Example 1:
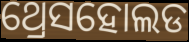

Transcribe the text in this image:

ଥ୍ରେସହୋଲଡ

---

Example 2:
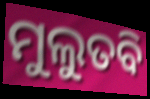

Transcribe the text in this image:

ମୁଲୁତବି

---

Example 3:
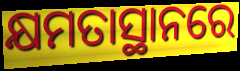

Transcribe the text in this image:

କ୍ଷମତାସ୍ଥାନରେ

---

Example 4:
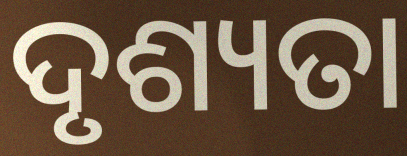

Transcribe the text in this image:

ଦୃଶ୍ୟତା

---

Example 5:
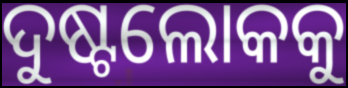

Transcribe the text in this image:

ଦୁଷ୍ଟଲୋକକୁ